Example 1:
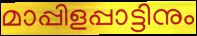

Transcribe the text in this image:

മാപ്പിളപ്പാട്ടിനും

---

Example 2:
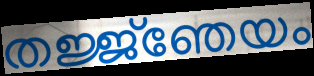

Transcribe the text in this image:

തജ്ജ്ഞേയം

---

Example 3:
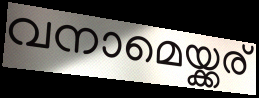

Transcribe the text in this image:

വനാമെയ്ക്കര്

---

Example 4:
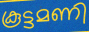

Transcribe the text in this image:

കൂട്ടമണി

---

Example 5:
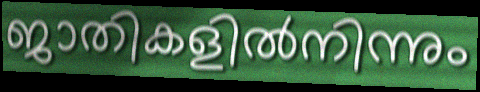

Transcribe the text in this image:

ജാതികളിൽനിന്നും